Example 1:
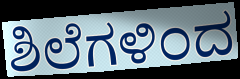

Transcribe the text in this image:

ಶಿಲೆಗಳಿಂದ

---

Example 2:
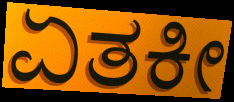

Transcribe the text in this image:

ಏತಕೀ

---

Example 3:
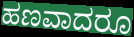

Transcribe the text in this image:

ಹಣವಾದರೂ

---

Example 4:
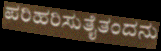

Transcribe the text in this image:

ಪರಿಹರಿಸುತೈತಂದನು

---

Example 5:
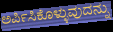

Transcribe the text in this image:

ಅರ್ಪಿಸಿಕೊಳ್ಳುವುದನ್ನು